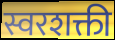
स्वरशक्ती